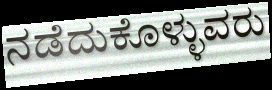
ನಡೆದುಕೊಳ್ಳುವರು